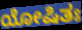
ಯೋಷಿತಃ